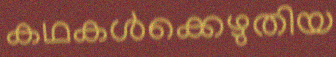
കഥകൾക്കെഴുതിയ